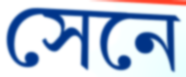
সেনে